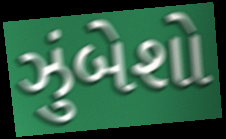
ઝુંબેશો